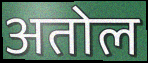
अतोल